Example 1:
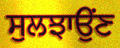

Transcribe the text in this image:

ਸੁਲਝਾਉਂਣ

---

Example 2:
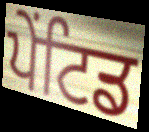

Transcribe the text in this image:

ਪੇਂਟਿਡ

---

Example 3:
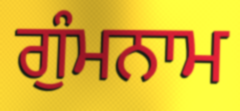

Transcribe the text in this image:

ਗੁੰਮਨਾਮ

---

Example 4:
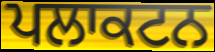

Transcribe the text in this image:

ਪਲਾਕਟਨ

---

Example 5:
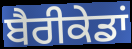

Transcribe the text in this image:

ਬੈਰੀਕੇਡਾਂ